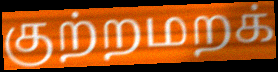
குற்றமறக்